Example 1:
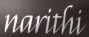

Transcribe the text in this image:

narithi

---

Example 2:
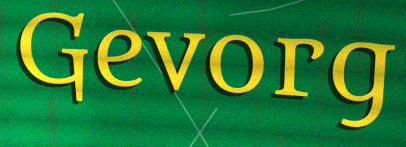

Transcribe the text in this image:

Gevorg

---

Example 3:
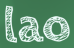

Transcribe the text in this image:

lao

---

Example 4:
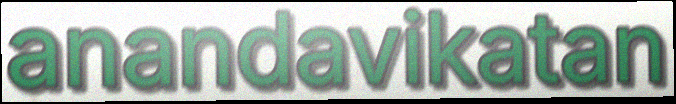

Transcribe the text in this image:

anandavikatan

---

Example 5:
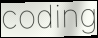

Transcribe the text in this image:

coding